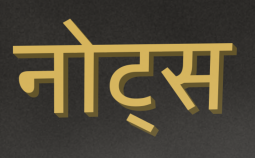
नोट्स